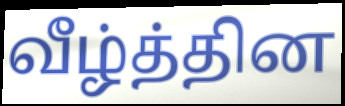
வீழ்த்தின